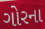
ગોરના